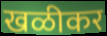
खळीकर